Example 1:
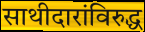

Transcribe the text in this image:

साथीदारांविरुद्ध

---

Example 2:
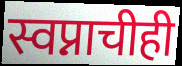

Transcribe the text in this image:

स्वप्नाचीही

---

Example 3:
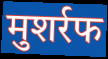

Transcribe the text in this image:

मुशर्रफ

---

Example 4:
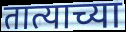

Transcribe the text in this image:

तात्याच्या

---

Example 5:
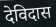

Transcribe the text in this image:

देविदास